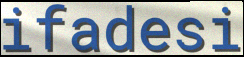
ifadesi